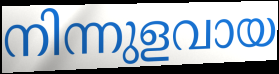
നിന്നുളവായ